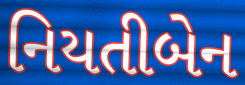
નિયતીબેન